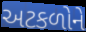
અટકળોને